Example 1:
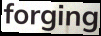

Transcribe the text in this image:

forging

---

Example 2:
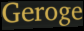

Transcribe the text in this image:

Geroge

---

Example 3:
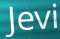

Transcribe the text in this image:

Jevi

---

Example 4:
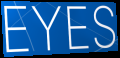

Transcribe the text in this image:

EYES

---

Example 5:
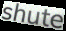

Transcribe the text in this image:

shute